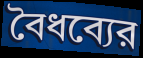
বৈধব্যের